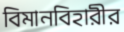
বিমানবিহারীর